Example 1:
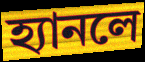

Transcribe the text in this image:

হ্যানলে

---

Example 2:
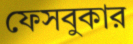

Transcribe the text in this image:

ফেসবুকার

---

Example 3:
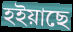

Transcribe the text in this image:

হইয়াছে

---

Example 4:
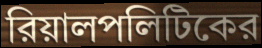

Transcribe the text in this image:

রিয়ালপলিটিকের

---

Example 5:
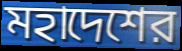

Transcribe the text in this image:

মহাদেশের